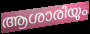
ആശാരിയും